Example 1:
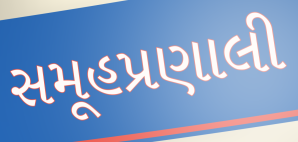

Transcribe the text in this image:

સમૂહપ્રણાલી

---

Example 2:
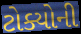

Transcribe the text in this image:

ટોક્યોની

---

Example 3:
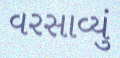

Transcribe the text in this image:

વરસાવ્યું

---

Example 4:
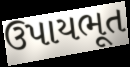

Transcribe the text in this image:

ઉપાયભૂત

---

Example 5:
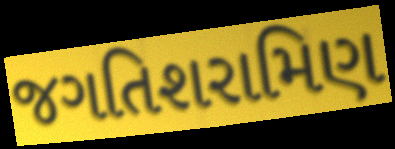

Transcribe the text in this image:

જગતિશરામિણ